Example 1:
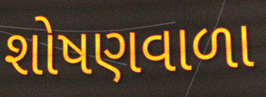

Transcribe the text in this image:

શોષણવાળા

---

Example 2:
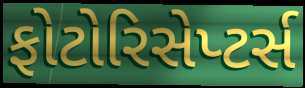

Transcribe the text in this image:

ફોટોરિસેપ્ટર્સ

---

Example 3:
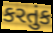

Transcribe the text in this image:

કરતુંક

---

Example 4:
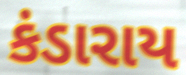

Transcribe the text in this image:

કંડારાય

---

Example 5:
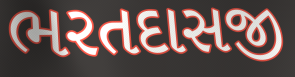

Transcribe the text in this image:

ભરતદાસજી